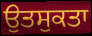
ਉਤਸੁਕਤਾ